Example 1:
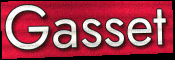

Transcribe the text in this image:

Gasset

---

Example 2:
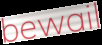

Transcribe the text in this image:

bewail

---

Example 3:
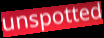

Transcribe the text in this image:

unspotted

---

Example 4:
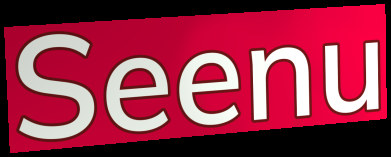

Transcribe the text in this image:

Seenu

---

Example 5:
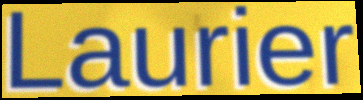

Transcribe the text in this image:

Laurier